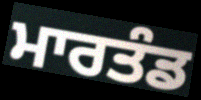
ਮਾਰਤੰਡ